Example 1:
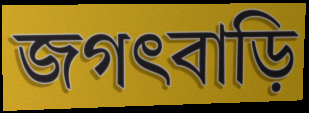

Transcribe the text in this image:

জগৎবাড়ি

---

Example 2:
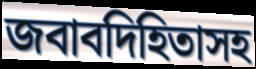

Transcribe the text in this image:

জবাবদিহিতাসহ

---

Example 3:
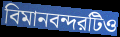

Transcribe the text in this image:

বিমানবন্দরটিও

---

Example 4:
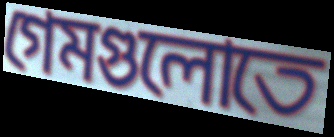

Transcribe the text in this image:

গেমগুলোতে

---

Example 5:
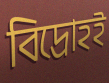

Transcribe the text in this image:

বিদ্রোহই